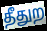
தீதுற